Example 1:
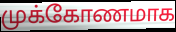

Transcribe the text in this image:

முக்கோணமாக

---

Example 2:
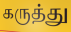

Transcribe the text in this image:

கருத்து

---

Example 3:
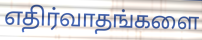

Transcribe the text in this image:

எதிர்வாதங்களை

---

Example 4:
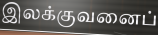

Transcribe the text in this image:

இலக்குவனைப்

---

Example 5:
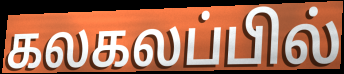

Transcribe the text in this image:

கலகலப்பில்